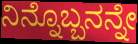
ನಿನ್ನೊಬ್ಬನನ್ನೇ